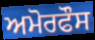
ਅਮੋਰਫੌਸ